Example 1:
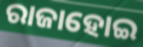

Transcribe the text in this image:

ରାଜାହୋଇ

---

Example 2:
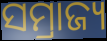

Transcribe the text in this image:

ସମ୍ରାଜ୍ୟ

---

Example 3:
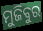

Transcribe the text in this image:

ମୁଜିବୁର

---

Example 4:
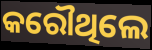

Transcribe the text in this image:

କରୌଥିଲେ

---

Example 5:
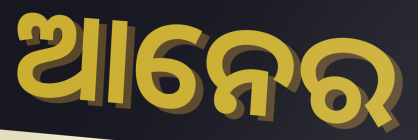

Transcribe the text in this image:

ଆନେର